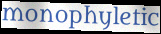
monophyletic